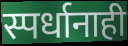
स्पर्धानाही